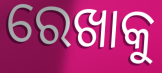
ରେଖାକୁ